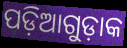
ପଡ଼ିଆଗୁଡ଼ାକ